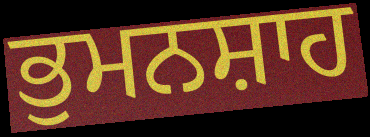
ਭੁਮਨਸ਼ਾਹ